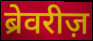
ब्रेवरीज़